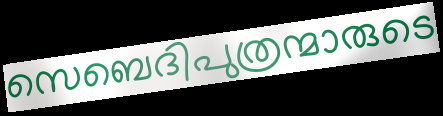
സെബെദിപുത്രന്മാരുടെ